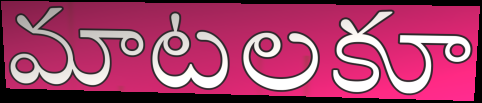
మాటలకూ